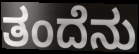
ತಂದೆನು